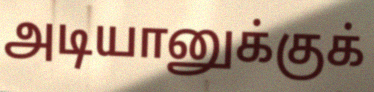
அடியானுக்குக்